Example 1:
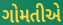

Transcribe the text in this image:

ગોમતીએ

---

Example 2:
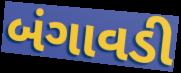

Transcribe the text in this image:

બંગાવડી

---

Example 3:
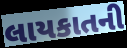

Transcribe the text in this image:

લાયકાતની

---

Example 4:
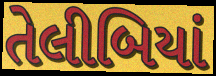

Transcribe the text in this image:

તેલીબિયાં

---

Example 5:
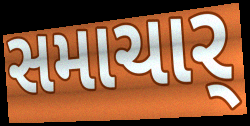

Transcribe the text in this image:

સમાચાર્